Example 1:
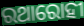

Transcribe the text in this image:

ରଥାରୋହୀ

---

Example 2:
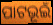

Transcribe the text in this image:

ପାଟଭୂଇଁ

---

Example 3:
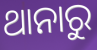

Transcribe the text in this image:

ଥାନାରୁ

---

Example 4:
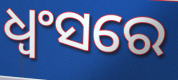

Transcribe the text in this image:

ଧ୍ୱଂସରେ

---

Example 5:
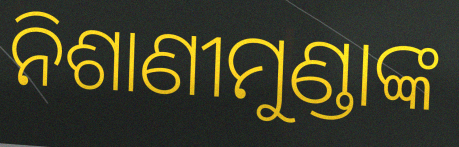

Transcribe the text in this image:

ନିଶାଣୀମୁଣ୍ଡାଙ୍କ